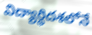
విద్యార్థిదశలోనే